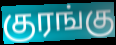
குரங்கு